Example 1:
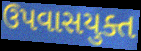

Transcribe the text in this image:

ઉપવાસયુક્ત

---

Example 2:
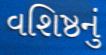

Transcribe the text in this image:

વશિષ્ઠનું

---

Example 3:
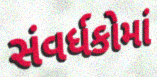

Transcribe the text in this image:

સંવર્ધકોમાં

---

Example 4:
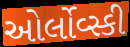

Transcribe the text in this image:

ઓર્લોવ્સ્કી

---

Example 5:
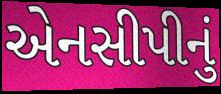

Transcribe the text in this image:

એનસીપીનું